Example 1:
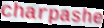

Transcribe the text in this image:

charpashe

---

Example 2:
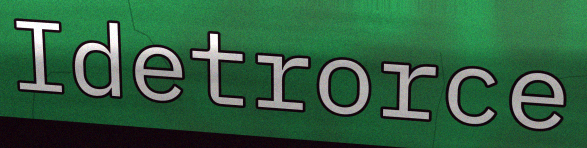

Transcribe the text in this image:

Idetrorce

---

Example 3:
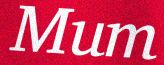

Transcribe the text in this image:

Mum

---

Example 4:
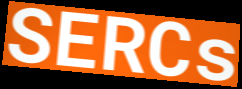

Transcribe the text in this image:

SERCs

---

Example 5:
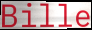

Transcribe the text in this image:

Bille